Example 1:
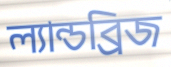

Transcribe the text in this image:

ল্যান্ডব্রিজ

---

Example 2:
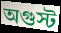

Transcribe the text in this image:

অগুস্ট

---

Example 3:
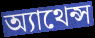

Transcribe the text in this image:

অ্যাথেন্স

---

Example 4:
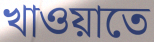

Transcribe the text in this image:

খাওয়াতে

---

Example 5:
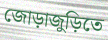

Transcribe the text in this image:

জোড়াজুড়িতে